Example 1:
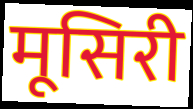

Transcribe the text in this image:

मूसिरी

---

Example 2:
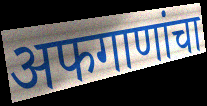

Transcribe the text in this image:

अफगाणांचा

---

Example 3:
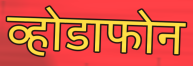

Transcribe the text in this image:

व्होडाफोन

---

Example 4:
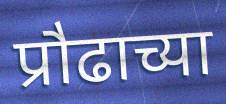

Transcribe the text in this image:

प्रौढाच्या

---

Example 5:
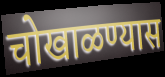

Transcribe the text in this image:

चोखाळण्यास